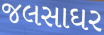
જલસાઘર